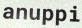
anuppi